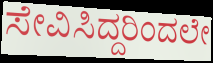
ಸೇವಿಸಿದ್ದರಿಂದಲೇ